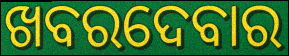
ଖବରଦେବାର